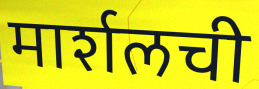
मार्शलची